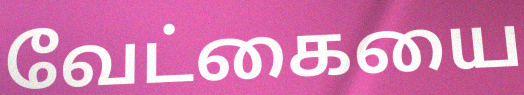
வேட்கையை